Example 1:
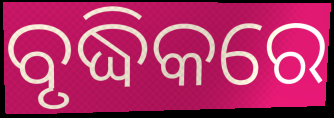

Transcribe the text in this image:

ବୃଦ୍ଧିକରେ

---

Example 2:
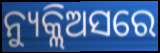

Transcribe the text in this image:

ନ୍ୟୁକ୍ଲିଅସରେ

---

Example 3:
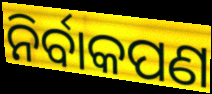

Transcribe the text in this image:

ନିର୍ବାକପଣ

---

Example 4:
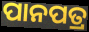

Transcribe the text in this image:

ପାନପତ୍ର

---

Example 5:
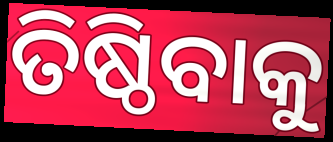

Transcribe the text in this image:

ତିଷ୍ଠିବାକୁ